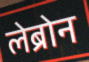
लेब्रोन